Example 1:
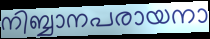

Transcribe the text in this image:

നിബ്ബാനപരായനാ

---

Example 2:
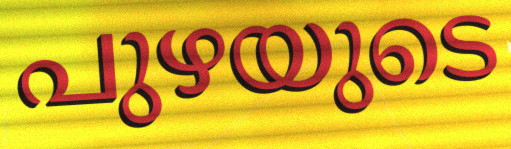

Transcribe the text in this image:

പുഴയുടെ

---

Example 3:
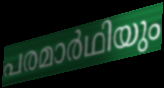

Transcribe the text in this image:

പരമാർഥിയും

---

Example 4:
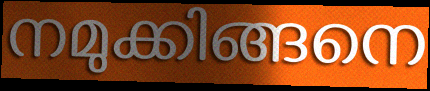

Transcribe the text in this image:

നമുക്കിങ്ങനെ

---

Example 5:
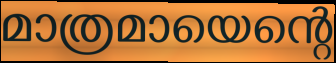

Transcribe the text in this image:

മാത്രമായെന്റെ